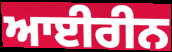
ਆਈਰੀਨ